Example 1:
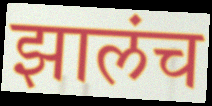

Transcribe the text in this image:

झालंच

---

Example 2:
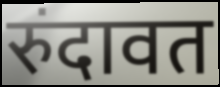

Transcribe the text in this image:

रुंदावत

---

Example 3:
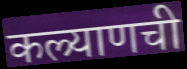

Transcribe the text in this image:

कल्याणची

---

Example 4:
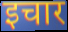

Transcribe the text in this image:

इचार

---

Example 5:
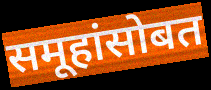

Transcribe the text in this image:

समूहांसोबत